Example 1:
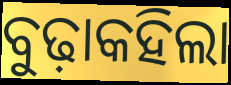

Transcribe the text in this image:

ବୁଢ଼ାକହିଲା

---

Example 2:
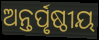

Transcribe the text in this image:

ଅନ୍ତର୍ପୃଷ୍ଠୀୟ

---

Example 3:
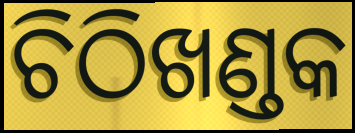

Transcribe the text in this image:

ଚିଠିଖଣ୍ଡକ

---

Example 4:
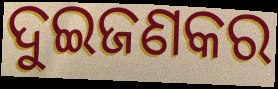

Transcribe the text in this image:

ଦୁଇଜଣକର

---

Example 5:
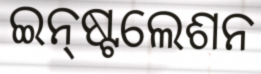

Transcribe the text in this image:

ଇନ୍‌ଷ୍ଟଲେଶନ